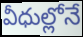
వీధుల్లోనే